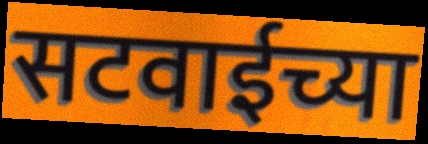
सटवाईच्या